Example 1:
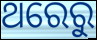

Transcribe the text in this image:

ଥରେରୁ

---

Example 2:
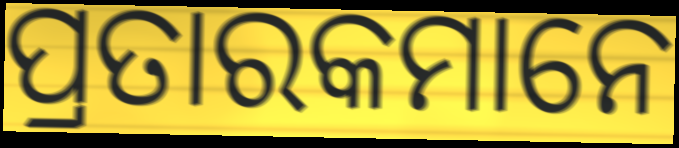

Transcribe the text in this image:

ପ୍ରତାରକମାନେ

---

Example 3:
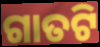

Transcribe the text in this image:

ଗାତଟି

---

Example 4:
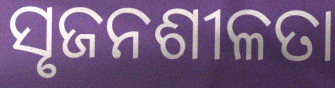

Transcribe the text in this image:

ସୃଜନଶୀଳତା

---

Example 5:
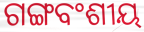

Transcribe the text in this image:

ଗଙ୍ଗବଂଶୀୟ